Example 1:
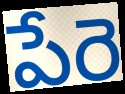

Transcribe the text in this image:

పేరె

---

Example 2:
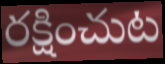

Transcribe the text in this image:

రక్షించుట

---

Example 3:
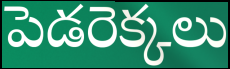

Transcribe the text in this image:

పెడరెక్కలు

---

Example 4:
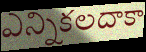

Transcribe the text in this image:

ఎన్నికలదాకా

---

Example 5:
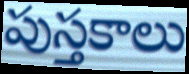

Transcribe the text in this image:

పుస్తకాలు